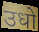
उधो